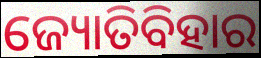
ଜ୍ୟୋତିବିହାର